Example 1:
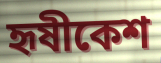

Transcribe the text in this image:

হৃষীকেশ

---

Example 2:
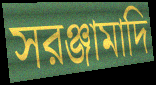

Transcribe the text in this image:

সরঞ্জামাদি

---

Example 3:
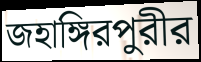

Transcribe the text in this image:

জহাঙ্গিরপুরীর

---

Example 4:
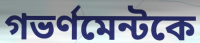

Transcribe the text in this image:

গভর্ণমেন্টকে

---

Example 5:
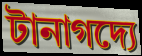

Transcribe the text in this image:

টানাগদ্যে